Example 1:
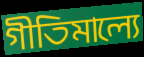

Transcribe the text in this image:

গীতিমাল্যে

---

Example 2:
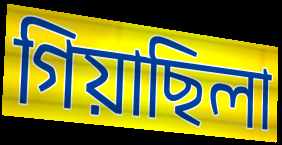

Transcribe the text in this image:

গিয়াছিলা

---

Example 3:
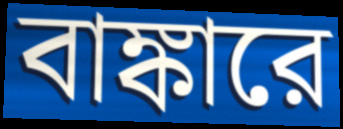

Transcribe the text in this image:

বাঙ্কারে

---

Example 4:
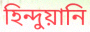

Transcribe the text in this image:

হিন্দুয়ানি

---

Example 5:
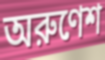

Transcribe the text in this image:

অরুণেশ